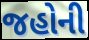
જહોની